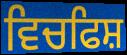
ਵਿਚਫਿਸ਼